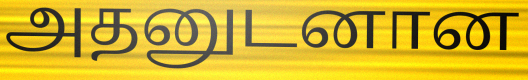
அதனுடனான